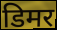
डिमर